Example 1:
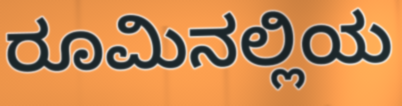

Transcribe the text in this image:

ರೂಮಿನಲ್ಲಿಯ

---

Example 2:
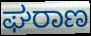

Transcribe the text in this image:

ಘರಾಣ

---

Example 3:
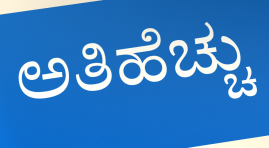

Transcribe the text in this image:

ಅತಿಹೆಚ್ಚು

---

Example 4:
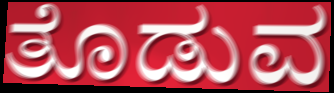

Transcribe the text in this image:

ತೊಡುವ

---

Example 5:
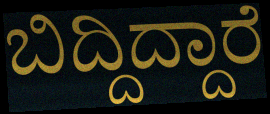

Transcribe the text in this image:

ಬಿದ್ದಿದ್ದಾರೆ